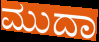
ಮುದಾ